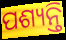
ପଶ୍ୟନ୍ତି